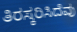
ತಿರಸ್ಕರಿಸಿದೆವು